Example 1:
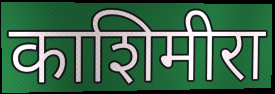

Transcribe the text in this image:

काशिमीरा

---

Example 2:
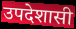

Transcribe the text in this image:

उपदेशासी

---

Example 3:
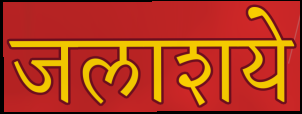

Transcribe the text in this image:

जलाशये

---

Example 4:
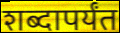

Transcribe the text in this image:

शब्दापर्यंत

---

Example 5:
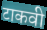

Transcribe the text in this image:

टाकवी